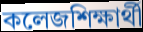
কলেজশিক্ষার্থী